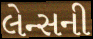
લેન્સની